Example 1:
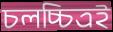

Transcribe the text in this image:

চলচ্চিত্ৰই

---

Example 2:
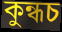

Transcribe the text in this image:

কুন্ধচ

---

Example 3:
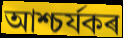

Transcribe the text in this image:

আশ্চৰ্যকৰ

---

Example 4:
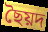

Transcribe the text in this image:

ছৈয়দ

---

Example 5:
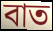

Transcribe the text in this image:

বাত